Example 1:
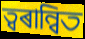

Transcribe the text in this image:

ত্বৰান্বিত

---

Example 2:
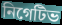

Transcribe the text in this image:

নিগেটিভ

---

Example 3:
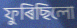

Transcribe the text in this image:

ফুৰিছিলো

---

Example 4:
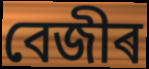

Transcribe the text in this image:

বেজীৰ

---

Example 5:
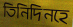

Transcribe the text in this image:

তিনিদিনহে